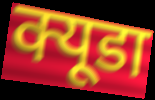
क्यूडा